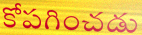
కోపగించడు